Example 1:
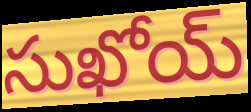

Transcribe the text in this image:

సుఖోయ్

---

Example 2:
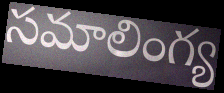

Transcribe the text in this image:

సమాలింగ్య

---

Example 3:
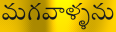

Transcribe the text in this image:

మగవాళ్ళను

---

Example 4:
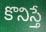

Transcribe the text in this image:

కొనిస్తే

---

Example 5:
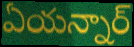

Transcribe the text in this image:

ఏయన్నార్